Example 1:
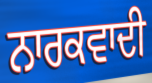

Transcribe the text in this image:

ਨਾਰਕਵਾਦੀ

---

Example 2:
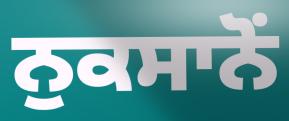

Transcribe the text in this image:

ਨੁਕਸਾਨੋਂ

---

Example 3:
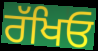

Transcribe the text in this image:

ਰੱਖਿਓ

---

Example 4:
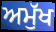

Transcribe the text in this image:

ਅਮੁੱਖ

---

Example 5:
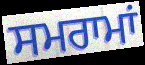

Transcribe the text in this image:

ਸਮਰਾਮਾਂ